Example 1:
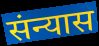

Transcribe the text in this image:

संन्यास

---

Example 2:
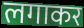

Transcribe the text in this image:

लगाकर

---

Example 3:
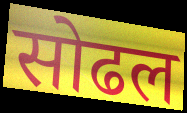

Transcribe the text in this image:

सोढल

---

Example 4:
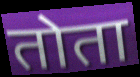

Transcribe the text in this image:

तोता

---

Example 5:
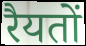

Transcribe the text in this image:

रैयतों